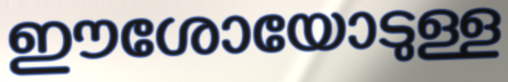
ഈശോയോടുള്ള